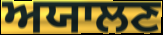
ਅਯਾਲਣ